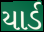
યાર્ડ